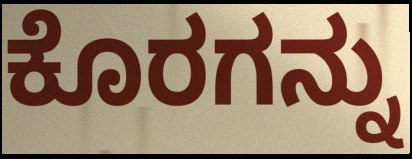
ಕೊರಗನ್ನು